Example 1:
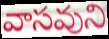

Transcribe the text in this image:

వాసవుని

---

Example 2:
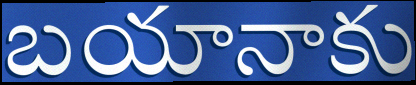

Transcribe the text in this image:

బయానాకు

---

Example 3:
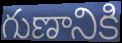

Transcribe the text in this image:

గుణానికి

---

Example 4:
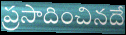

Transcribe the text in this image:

ప్రసాదించినదే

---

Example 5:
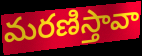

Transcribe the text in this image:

మరణిస్తావా